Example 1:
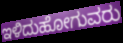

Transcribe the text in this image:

ಇಳಿದುಹೋಗುವರು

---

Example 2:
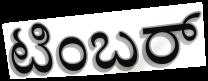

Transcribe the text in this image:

ಟಿಂಬರ್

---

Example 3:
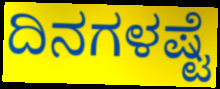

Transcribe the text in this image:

ದಿನಗಳಷ್ಟೆ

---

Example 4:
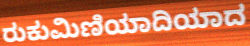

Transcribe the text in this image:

ರುಕುಮಿಣಿಯಾದಿಯಾದ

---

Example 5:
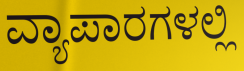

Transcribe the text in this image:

ವ್ಯಾಪಾರಗಳಲ್ಲಿ